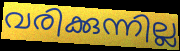
വരിക്കുന്നില്ല